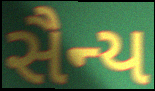
સૈન્ય